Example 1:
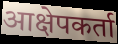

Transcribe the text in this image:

आक्षेपकर्ता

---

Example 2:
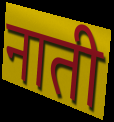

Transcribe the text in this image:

नाती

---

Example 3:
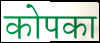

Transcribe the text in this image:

कोपका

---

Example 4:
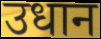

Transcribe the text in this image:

उधान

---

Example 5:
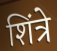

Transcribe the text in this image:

शिंत्रे